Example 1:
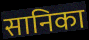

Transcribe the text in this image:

सानिका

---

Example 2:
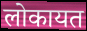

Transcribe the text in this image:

लोकायत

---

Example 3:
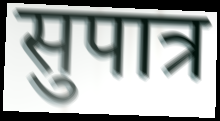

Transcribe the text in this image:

सुपात्र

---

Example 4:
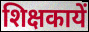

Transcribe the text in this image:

शिक्षकायें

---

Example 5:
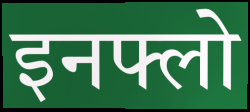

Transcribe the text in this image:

इनफ्लो